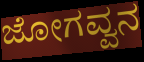
ಜೋಗವ್ವನ